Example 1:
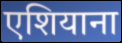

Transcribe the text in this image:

एशियाना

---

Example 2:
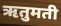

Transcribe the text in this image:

ऋतुमती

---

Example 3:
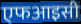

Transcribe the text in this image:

एफआइसी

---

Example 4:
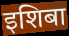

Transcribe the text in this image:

इशिबा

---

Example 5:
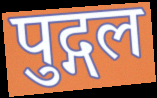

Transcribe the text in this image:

पुद्गल